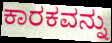
ಕಾರಕವನ್ನು